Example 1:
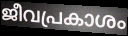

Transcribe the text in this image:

ജീവപ്രകാശം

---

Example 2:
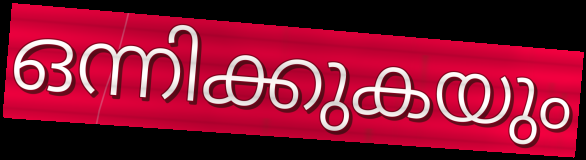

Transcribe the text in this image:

ഒന്നിക്കുകയും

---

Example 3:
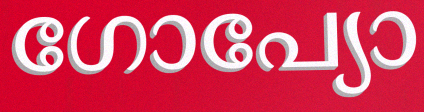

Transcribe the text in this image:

ഗോപ്യോ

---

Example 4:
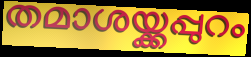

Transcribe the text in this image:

തമാശയ്ക്കപ്പുറം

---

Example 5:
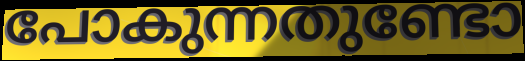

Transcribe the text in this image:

പോകുന്നതുണ്ടോ